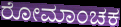
ರೋಮಾಂಚಕ